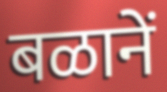
बळानें